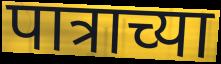
पात्राच्‍या